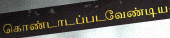
கொண்டாடப்படவேண்டிய